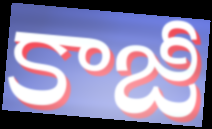
కాజీ